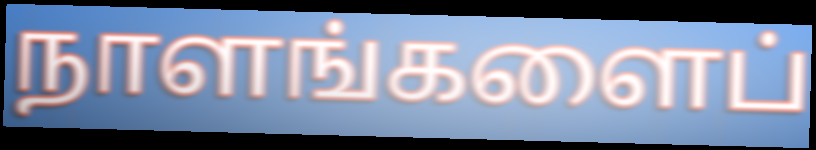
நாளங்களைப்